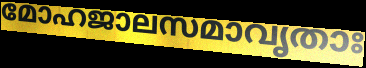
മോഹജാലസമാവൃതാഃ